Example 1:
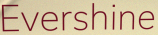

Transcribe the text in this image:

Evershine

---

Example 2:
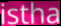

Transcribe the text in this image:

istha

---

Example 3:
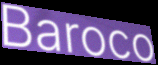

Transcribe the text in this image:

Baroco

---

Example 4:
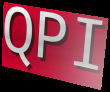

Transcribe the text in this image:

QPI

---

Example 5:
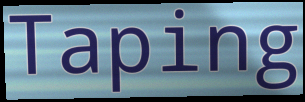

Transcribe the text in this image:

Taping